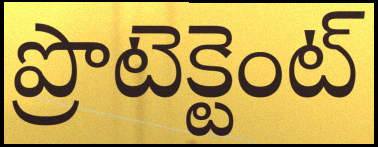
ప్రొటెక్టెంట్